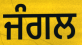
ਜੰਗਲ